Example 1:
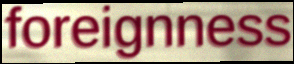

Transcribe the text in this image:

foreignness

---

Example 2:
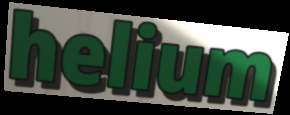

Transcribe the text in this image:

helium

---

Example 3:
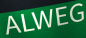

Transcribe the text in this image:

ALWEG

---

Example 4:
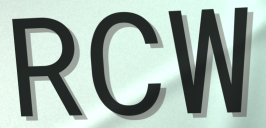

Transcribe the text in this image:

RCW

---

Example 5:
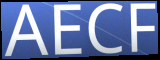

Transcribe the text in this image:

AECF